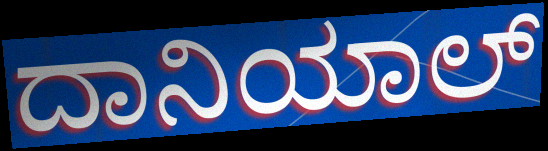
ದಾನಿಯಾಲ್